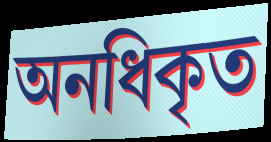
অনধিকৃত